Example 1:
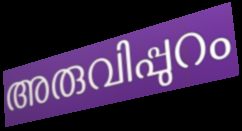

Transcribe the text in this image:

അരുവിപ്പുറം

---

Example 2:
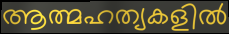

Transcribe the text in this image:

ആത്മഹത്യകളിൽ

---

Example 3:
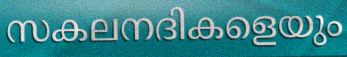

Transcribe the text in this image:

സകലനദികളെയും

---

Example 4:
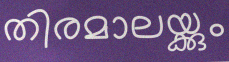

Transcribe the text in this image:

തിരമാലയ്ക്കും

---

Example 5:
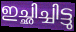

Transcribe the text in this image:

ഇച്ഛിച്ചിട്ടു